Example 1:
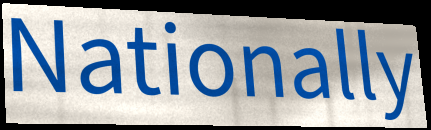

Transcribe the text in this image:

Nationally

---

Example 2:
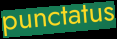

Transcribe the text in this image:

punctatus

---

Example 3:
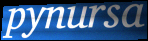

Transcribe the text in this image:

pynursa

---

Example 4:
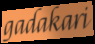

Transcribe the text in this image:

gadakari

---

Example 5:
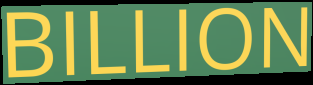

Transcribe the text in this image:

BILLION